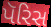
પૅરિસ